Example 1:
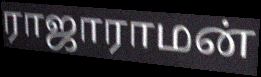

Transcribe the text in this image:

ராஜாராமன்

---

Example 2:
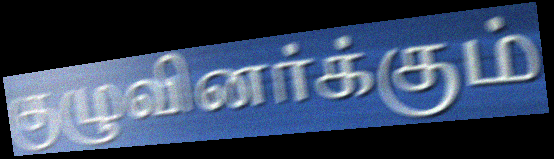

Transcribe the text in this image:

குழுவினர்க்கும்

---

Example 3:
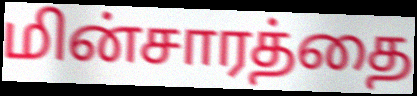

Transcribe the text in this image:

மின்சாரத்தை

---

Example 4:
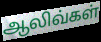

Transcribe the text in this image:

ஆலிவ்கள்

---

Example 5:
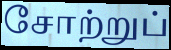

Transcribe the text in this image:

சோற்றுப்